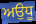
ਅਉਧੂ